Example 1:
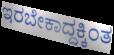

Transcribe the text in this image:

ಇರಬೇಕಾದ್ದಕ್ಕಿಂತ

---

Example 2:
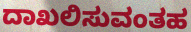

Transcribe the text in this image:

ದಾಖಲಿಸುವಂತಹ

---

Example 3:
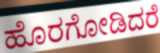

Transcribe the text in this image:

ಹೊರಗೋಡಿದರೆ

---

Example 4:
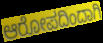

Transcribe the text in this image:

ಆರೋಪದಿಂದಾಗಿ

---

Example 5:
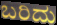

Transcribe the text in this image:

ಬರಿದು